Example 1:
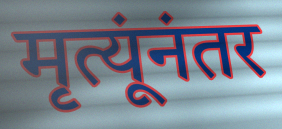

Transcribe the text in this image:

मृत्यूंनंतर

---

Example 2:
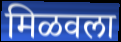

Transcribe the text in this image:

मिळवला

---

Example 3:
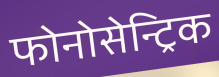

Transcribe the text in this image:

फोनोसेन्ट्रिक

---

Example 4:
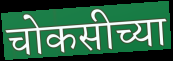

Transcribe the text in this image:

चोकसीच्या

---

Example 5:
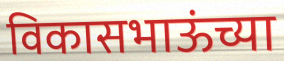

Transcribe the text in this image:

विकासभाऊंच्या